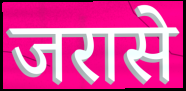
जरासे